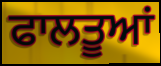
ਫਾਲਤੂਆਂ